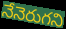
నేనెరుగని